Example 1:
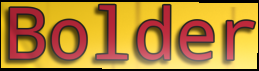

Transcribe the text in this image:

Bolder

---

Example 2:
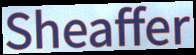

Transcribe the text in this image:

Sheaffer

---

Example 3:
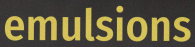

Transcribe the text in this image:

emulsions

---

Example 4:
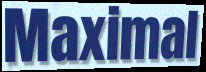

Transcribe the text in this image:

Maximal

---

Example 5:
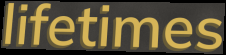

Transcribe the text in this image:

lifetimes